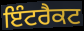
ਇੰਟਰੈਕਟ